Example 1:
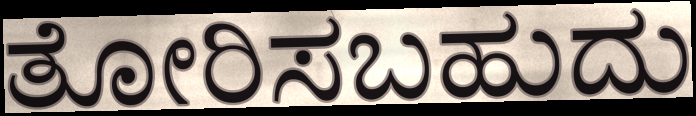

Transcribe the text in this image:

ತೋರಿಸಬಹುದು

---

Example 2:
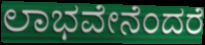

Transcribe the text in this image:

ಲಾಭವೇನೆಂದರೆ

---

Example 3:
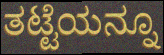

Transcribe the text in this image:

ತಟ್ಟೆಯನ್ನೂ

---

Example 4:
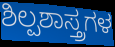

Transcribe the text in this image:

ಶಿಲ್ಪಶಾಸ್ತ್ರಗಳ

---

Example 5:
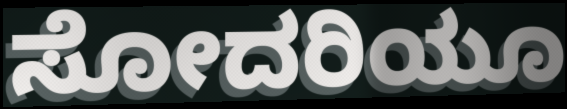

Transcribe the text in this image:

ಸೋದರಿಯೂ